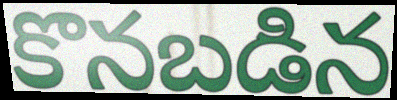
కొనబడిన